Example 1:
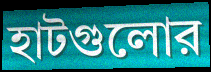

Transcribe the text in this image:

হাটগুলোর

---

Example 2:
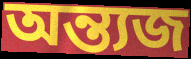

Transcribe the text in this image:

অন্ত্যজ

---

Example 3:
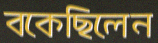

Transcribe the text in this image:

বকেছিলেন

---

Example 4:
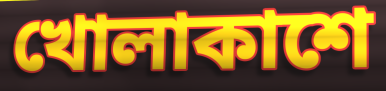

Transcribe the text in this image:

খোলাকাশে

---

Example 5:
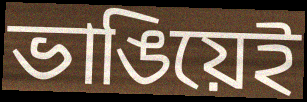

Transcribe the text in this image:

ভাঙিয়েই